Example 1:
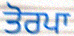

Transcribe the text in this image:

ਤੋਰਪਾ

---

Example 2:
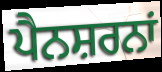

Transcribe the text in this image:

ਪੈਨਸ਼ਰਨਾਂ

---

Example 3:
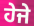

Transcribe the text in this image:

ਹੇਜੇ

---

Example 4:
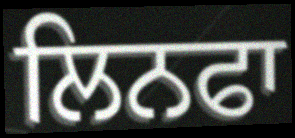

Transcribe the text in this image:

ਲਿਨਫਾ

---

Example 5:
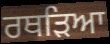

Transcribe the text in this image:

ਰਥੜਿਆ